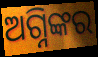
ଅଗ୍ନିଙ୍କର